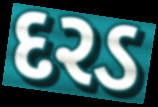
દરડ